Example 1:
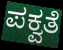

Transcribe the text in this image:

ಪಕ್ವತೆ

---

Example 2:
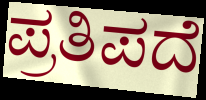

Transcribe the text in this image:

ಪ್ರತಿಪದೆ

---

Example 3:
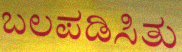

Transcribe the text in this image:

ಬಲಪಡಿಸಿತು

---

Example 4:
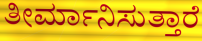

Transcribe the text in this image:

ತೀರ್ಮಾನಿಸುತ್ತಾರೆ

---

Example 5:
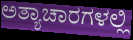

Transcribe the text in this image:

ಅತ್ಯಾಚಾರಗಳಲ್ಲಿ